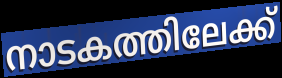
നാടകത്തിലേക്ക്